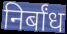
निर्बांध